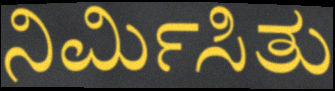
ನಿರ್ಮಿಸಿತು